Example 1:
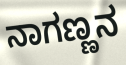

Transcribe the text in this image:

ನಾಗಣ್ಣನ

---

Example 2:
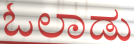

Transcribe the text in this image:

ಓಲಾಡು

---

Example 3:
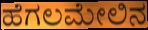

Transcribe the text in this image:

ಹೆಗಲಮೇಲಿನ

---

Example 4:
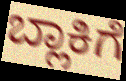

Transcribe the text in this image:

ಬ್ಲಾಕಿಗೆ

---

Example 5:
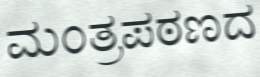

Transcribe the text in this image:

ಮಂತ್ರಪಠಣದ